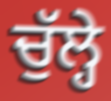
ਚੁੱਲ੍ਹੇ